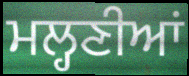
ਮਲ੍ਹਣੀਆਂ